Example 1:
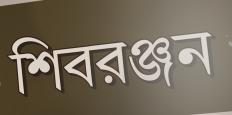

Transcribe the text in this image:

শিবরঞ্জন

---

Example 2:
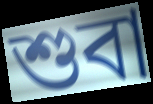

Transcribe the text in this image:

শুবা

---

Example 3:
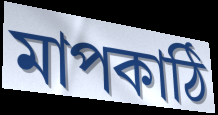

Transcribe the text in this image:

মাপকাঠি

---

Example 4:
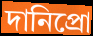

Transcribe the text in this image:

দানিপ্রো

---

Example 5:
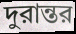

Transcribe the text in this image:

দুরান্তর